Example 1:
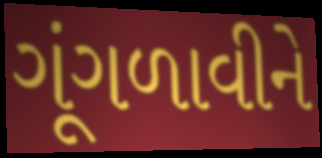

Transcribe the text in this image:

ગૂંગળાવીને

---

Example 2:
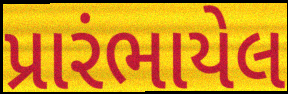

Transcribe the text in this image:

પ્રારંભાયેલ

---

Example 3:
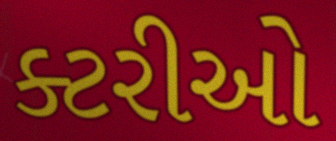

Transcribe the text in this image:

ક્ટરીઓ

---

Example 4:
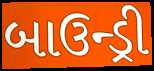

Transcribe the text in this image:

બાઉન્ડ્રી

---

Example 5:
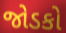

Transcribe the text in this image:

જોડકો